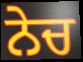
ਨੇਚ